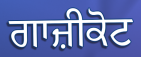
ਗਾਜ਼ੀਕੋਟ